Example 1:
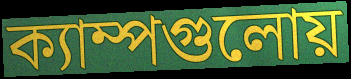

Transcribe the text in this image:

ক্যাম্পগুলোয়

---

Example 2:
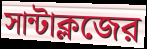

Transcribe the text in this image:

সান্টাক্লজের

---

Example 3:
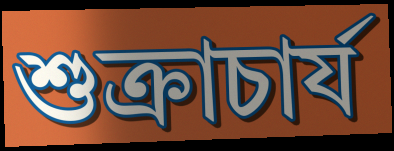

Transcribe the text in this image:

শুক্রাচার্য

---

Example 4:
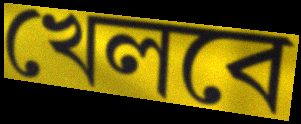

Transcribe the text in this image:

খেলবে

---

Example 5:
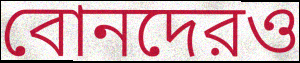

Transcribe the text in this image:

বোনদেরও